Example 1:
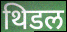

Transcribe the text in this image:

थिडल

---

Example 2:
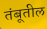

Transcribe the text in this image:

तंबूतील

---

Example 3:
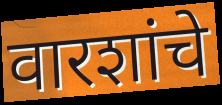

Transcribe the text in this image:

वारशांचे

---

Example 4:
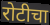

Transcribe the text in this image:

रोटीचा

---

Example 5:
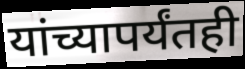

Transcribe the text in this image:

यांच्यापर्यंतही